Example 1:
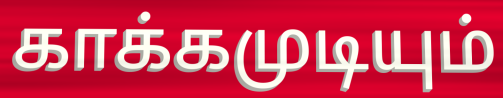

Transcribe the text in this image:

காக்கமுடியும்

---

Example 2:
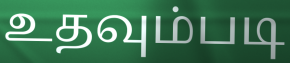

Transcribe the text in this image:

உதவும்படி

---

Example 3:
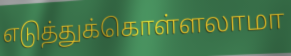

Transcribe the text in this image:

எடுத்துக்கொள்ளலாமா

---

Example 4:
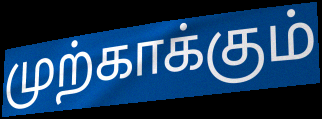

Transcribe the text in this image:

முற்காக்கும்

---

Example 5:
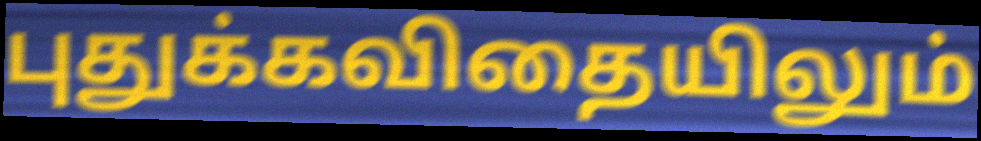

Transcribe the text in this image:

புதுக்கவிதையிலும்